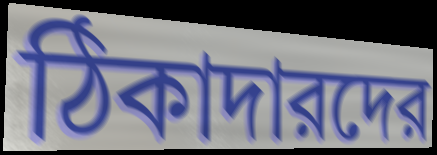
ঠিকাদারদের